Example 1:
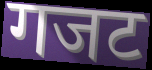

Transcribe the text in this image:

गजट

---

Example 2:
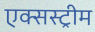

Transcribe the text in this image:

एक्सस्ट्रीम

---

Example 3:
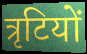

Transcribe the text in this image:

त्रृटियों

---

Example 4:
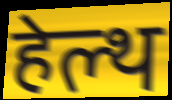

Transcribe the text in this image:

हेल्‍थ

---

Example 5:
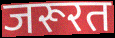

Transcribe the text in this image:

जरूरत